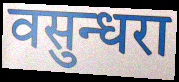
वसुन्धरा